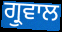
ਗ੍ਰੁਵਾਲ